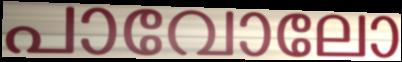
പാവോലോ